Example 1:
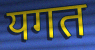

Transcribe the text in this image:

यगत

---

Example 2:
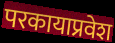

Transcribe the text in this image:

परकायाप्रवेश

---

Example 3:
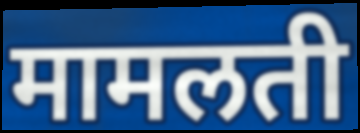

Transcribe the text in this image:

मामलती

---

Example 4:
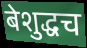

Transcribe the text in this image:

बेशुद्धच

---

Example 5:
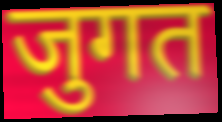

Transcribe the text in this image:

जुगत